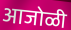
आजोळी